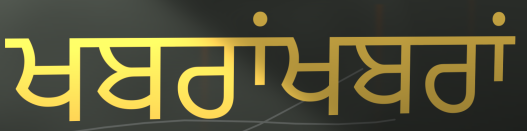
ਖਬਰਾਂਖਬਰਾਂ